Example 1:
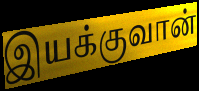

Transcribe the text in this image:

இயக்குவான்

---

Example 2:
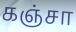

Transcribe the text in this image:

கஞ்சா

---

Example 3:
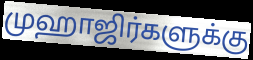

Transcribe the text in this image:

முஹாஜிர்களுக்கு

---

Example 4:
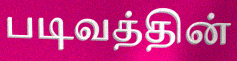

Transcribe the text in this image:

படிவத்தின்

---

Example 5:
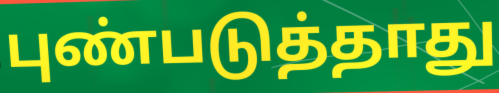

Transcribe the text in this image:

புண்படுத்தாது